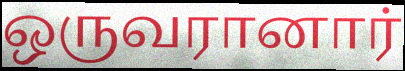
ஒருவரானார்